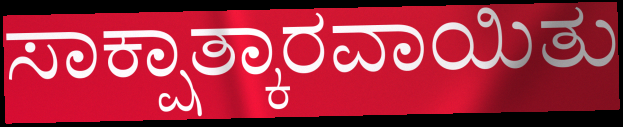
ಸಾಕ್ಷಾತ್ಕಾರವಾಯಿತು